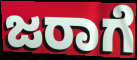
ಜರಾಗೆ